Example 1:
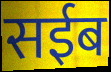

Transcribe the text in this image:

सईब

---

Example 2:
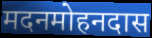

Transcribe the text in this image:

मदनमोहनदास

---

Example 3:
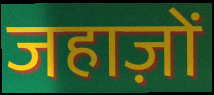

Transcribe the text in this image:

जहाज़ों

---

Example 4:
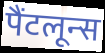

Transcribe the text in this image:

पैंटलून्स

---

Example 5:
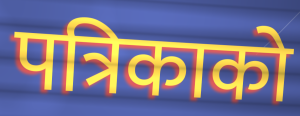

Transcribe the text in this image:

पत्रिकाको